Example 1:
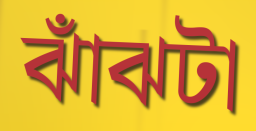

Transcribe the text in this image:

ঝাঁঝটা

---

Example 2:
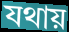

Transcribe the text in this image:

যথায়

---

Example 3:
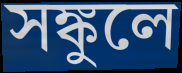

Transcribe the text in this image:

সঙ্কুলে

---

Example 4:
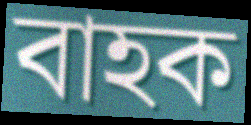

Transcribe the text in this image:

বাহক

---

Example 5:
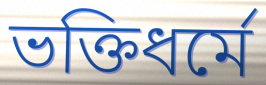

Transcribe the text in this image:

ভক্তিধর্মে